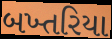
બખ્તરિયા